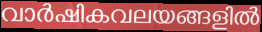
വാർഷികവലയങ്ങളിൽ